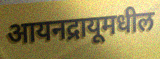
आयनद्रायूमधील